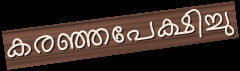
കരഞ്ഞപേക്ഷിച്ചു